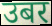
उबर